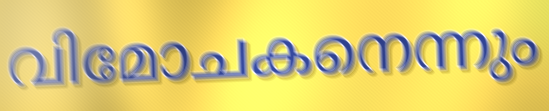
വിമോചകനെന്നും